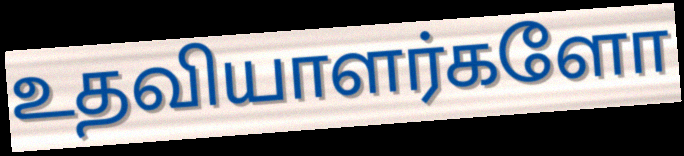
உதவியாளர்களோ